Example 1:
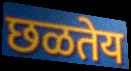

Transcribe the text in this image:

छळतेय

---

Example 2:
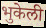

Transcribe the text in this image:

भुकेली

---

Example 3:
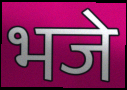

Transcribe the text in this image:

भजे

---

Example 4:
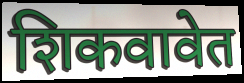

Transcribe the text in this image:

शिकवावेत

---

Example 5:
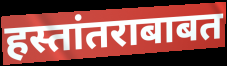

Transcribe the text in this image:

हस्तांतराबाबत